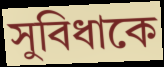
সুবিধাকে